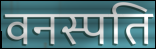
वनस्‍पति